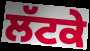
ਲੱਟਕੇ